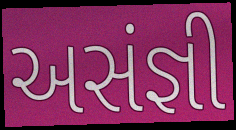
અસંજ્ઞી